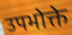
उपभोक्ते